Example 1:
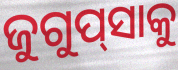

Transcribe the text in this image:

ଜୁଗୁପ୍‍ସାକୁ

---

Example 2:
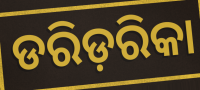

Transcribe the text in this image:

ଡରିଡ଼ରିକା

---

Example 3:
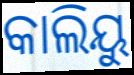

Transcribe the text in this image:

କାଲିୟୁ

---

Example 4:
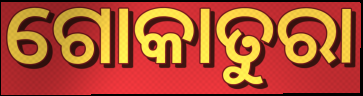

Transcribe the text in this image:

ଗୋକାତୁରା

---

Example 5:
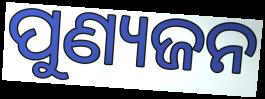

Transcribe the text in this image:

ପୁଣ୍ୟଜନ